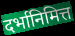
दर्भानिमित्त